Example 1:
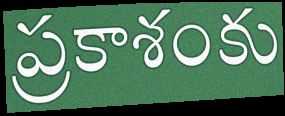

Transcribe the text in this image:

ప్రకాశంకు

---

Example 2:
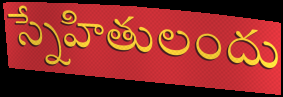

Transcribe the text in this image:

స్నేహితులందు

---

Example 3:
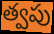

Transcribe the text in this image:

త్వపు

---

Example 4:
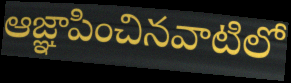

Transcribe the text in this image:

ఆజ్ఞాపించినవాటిలో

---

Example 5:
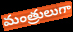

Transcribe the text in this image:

మంత్రులుగా